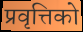
प्रवृत्तिको